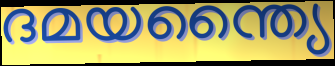
ദമയന്ത്യൈ